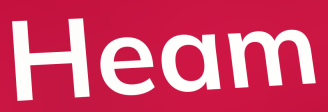
Heam